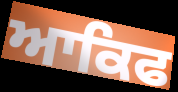
ਆਕਿਫ